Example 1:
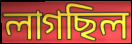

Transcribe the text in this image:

লাগছিল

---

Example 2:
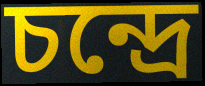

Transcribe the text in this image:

চন্দ্রে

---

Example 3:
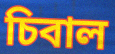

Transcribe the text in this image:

চিবাল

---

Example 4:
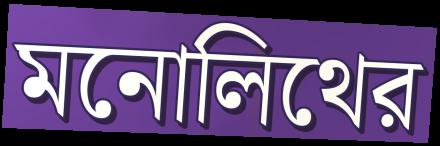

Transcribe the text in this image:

মনোলিথের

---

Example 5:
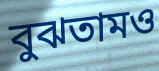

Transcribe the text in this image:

বুঝতামও